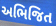
અભિજિત